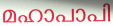
മഹാപാപി